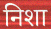
निशा